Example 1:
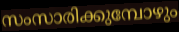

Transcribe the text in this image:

സംസാരിക്കുമ്പോഴും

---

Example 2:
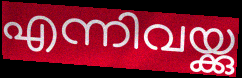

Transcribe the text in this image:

എന്നിവയ്ക്കു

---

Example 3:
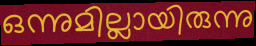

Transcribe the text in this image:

ഒന്നുമില്ലായിരുന്നു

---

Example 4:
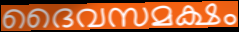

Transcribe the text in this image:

ദൈവസമക്ഷം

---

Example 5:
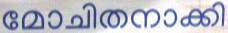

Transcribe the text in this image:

മോചിതനാക്കി